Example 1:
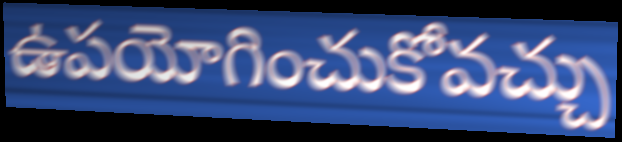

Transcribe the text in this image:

ఉపయోగించుకోవచ్చు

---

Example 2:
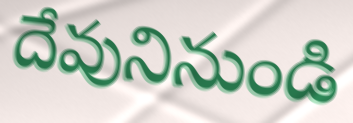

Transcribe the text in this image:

దేవునినుండి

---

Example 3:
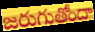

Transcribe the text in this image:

జరుగుతోందా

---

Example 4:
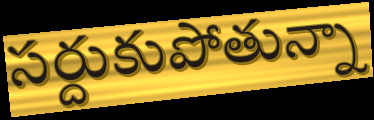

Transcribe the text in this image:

సర్దుకుపోతున్నా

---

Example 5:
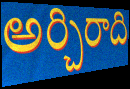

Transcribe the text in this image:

అర్చిరాది